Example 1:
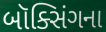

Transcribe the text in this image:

બૉક્સિંગના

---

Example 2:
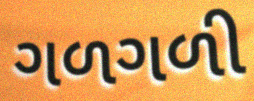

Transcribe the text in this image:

ગળગળી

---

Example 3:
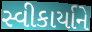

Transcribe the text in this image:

સ્વીકાર્યાને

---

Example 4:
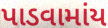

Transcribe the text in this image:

પાડવામાંય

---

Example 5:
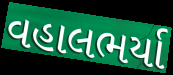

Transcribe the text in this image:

વહાલભર્યા